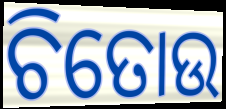
ଚିତୋଉ